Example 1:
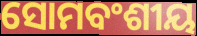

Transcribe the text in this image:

ସୋମବଂଶୀୟ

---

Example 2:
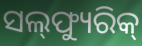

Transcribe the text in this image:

ସଲ୍‌ଫ୍ୟୁରିକ୍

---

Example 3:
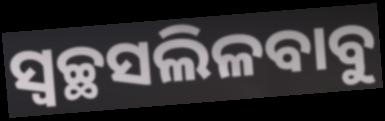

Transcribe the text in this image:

ସ୍ୱଚ୍ଛସଲିଳବାବୁ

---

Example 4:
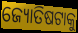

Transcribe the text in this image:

ଜ୍ୟୋତିଷଟାକୁ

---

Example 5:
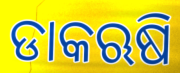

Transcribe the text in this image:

ଡାକଋଷି